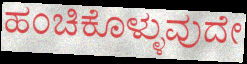
ಹಂಚಿಕೊಳ್ಳುವುದೇ